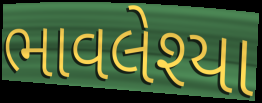
ભાવલેશ્યા